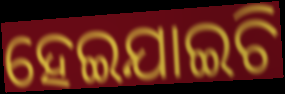
ହେଇଯାଇଚି